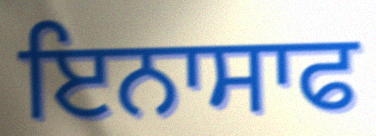
ਇਨਾਸਾਫ